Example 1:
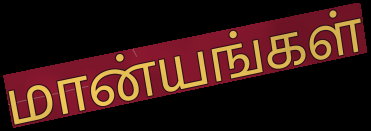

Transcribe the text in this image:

மான்யங்கள்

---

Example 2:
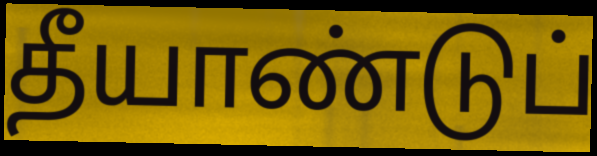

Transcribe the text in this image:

தீயாண்டுப்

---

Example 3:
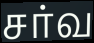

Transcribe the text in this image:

சர்வ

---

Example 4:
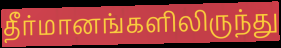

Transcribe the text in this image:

தீர்மானங்களிலிருந்து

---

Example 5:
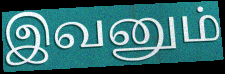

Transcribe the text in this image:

இவனும்